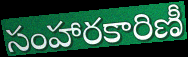
సంహారకారిణీ